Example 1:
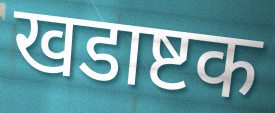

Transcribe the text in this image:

खडाष्टक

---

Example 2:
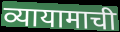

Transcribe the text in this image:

व्यायामाची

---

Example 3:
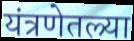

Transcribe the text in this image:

यंत्रणेतल्या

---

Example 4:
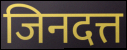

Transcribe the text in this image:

जिनदत्त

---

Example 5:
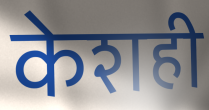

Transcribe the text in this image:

केशही